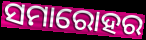
ସମାରୋହର